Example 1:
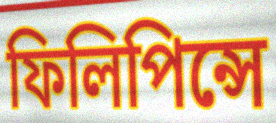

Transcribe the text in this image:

ফিলিপিন্সে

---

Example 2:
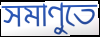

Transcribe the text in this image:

সমাণুতে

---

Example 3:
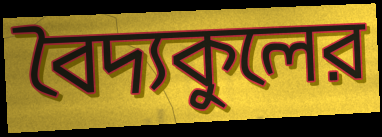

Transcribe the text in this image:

বৈদ্যকুলের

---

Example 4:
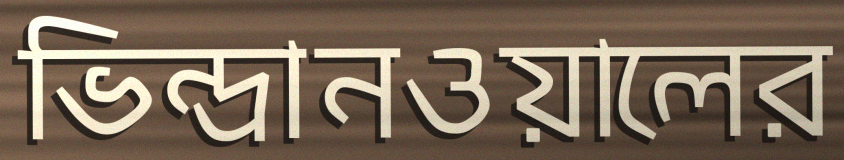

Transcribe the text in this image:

ভিন্দ্রানওয়ালের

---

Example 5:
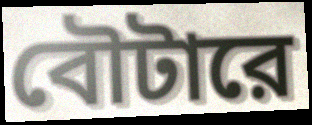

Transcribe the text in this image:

বৌটারে